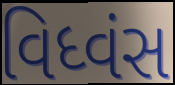
વિધ્વંસ